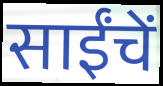
साईंचें